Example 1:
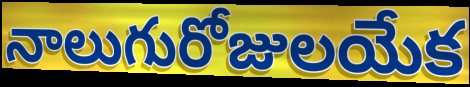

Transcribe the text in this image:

నాలుగురోజులయేక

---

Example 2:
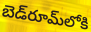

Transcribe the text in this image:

బెడ్‌రూమ్‌లోకి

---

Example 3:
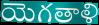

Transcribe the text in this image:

యెగతాళి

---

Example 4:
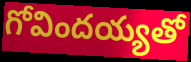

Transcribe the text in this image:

గోవిందయ్యతో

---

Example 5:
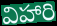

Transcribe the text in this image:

విహారి